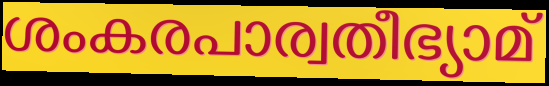
ശംകരപാര്വതീഭ്യാമ്